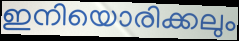
ഇനിയൊരിക്കലും